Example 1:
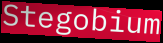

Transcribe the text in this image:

Stegobium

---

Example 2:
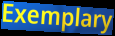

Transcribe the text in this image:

Exemplary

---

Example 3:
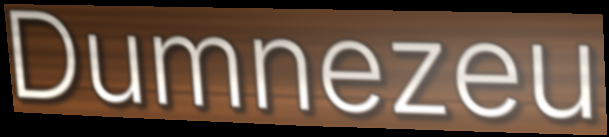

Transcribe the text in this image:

Dumnezeu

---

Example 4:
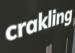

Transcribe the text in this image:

crakling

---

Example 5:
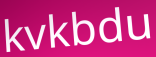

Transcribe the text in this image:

kvkbdu